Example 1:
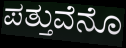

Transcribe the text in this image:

ಪತ್ತುವೆನೊ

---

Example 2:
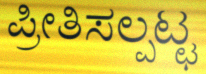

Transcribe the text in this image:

ಪ್ರೀತಿಸಲ್ಪಟ್ಟ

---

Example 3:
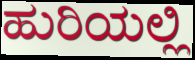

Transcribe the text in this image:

ಹುರಿಯಲ್ಲಿ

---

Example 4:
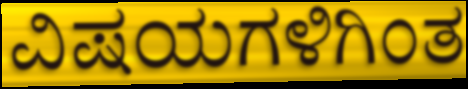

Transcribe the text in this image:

ವಿಷಯಗಳಿಗಿಂತ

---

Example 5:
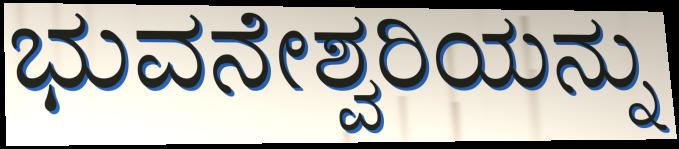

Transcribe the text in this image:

ಭುವನೇಶ್ವರಿಯನ್ನು